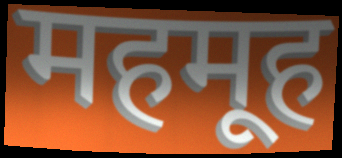
महमूह